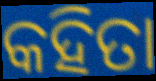
କହିତା